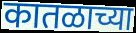
कातळाच्या